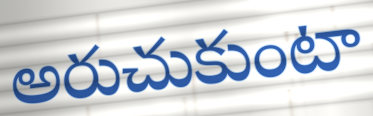
అరుచుకుంటా